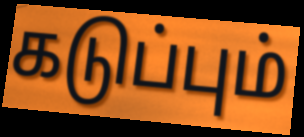
கடுப்பும்